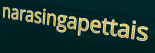
narasingapettais